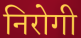
निरोगी